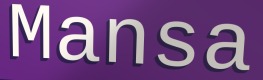
Mansa